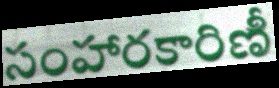
సంహారకారిణీ